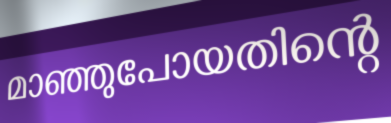
മാഞ്ഞുപോയതിന്റെ